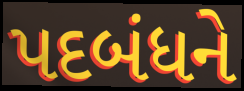
પદબંધને